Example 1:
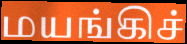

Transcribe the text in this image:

மயங்கிச்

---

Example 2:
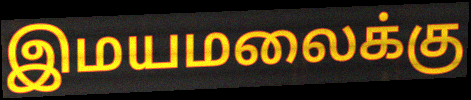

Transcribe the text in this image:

இமயமலைக்கு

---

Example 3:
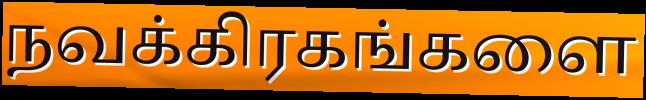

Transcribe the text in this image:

நவக்கிரகங்களை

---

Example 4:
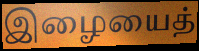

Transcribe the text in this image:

இழையைத்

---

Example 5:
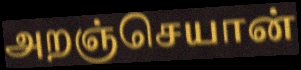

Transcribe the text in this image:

அறஞ்செயான்